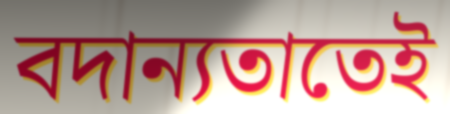
বদান্যতাতেই